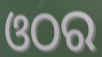
ଓଠର